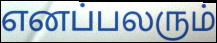
எனப்பலரும்